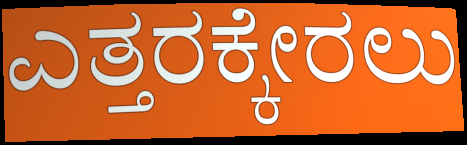
ಎತ್ತರಕ್ಕೇರಲು